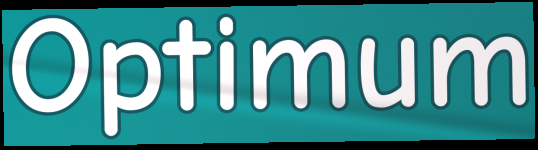
Optimum